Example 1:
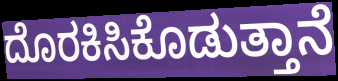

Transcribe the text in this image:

ದೊರಕಿಸಿಕೊಡುತ್ತಾನೆ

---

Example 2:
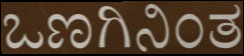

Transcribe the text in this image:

ಒಣಗಿನಿಂತ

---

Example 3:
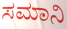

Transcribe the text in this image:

ಸಮಾನಿ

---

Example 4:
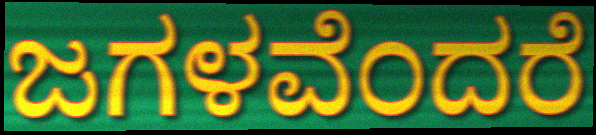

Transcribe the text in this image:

ಜಗಳವೆಂದರೆ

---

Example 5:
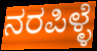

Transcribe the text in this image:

ನರಪಿಳ್ಳೆ